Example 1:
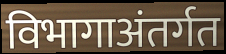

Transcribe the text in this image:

विभागाअंतर्गत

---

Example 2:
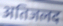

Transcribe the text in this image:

अतिजलद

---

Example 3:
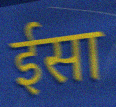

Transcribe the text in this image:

ईसा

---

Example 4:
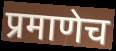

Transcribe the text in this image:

प्रमाणेच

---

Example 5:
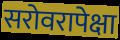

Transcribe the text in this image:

सरोवरापेक्षा